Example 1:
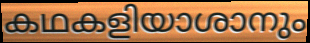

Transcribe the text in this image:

കഥകളിയാശാനും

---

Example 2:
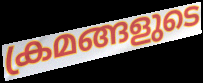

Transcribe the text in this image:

ക്രമങ്ങളുടെ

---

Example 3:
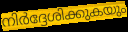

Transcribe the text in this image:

നിർദ്ദേശിക്കുകയും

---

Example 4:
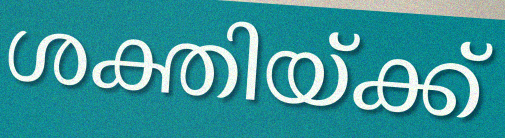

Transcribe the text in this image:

ശക്തിയ്ക്ക്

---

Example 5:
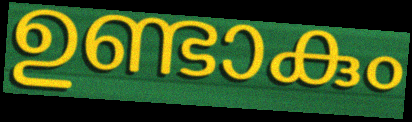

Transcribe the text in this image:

ഉണ്ടാകും